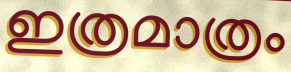
ഇത്രമാത്രം